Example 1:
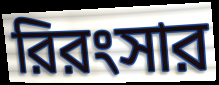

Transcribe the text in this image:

রিরংসার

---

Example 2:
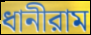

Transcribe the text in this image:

ধানীরাম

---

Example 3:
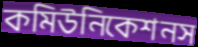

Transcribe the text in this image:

কমিউনিকেশনস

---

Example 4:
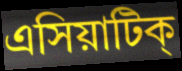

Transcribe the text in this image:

এসিয়াটিক্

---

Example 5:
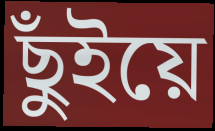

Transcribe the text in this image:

ছুঁইয়ে